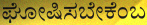
ಘೋಷಿಸಬೇಕೆಂಬ